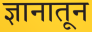
ज्ञानातून